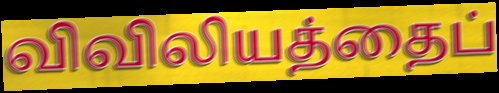
விவிலியத்தைப்